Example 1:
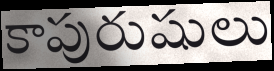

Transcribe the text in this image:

కాపురుషులు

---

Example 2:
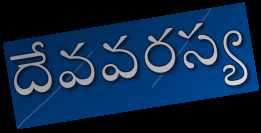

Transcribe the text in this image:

దేవవరస్య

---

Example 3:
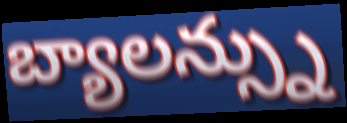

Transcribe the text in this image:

బ్యాలన్స్ను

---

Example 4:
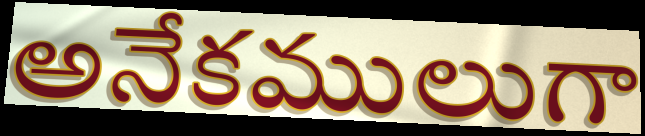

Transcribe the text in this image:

అనేకములుగా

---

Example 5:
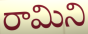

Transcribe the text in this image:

రామిని